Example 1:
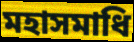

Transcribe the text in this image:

মহাসমাধি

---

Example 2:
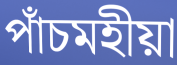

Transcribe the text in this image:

পাঁচমহীয়া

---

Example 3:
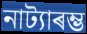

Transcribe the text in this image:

নাট্যাৰম্ভ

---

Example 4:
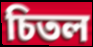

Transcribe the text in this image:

চিতল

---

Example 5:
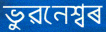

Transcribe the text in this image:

ভুৱনেশ্বৰ